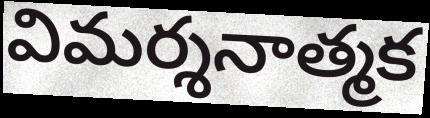
విమర్శనాత్మక